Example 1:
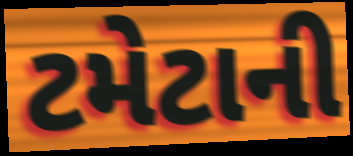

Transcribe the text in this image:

ટમેટાની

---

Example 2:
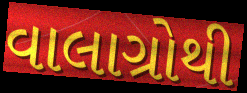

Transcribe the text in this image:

વાલાગ્રોથી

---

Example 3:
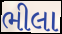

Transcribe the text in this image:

ભીલા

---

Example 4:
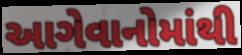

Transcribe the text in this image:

આગેવાનોમાંથી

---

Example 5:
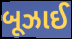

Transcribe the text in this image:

બૂઝાઈ